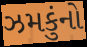
ઝમકુંનો